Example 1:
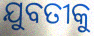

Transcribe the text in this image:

ଯୁବତୀକୁ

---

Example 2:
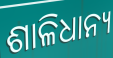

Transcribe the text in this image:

ଶାଳିଧାନ୍ୟ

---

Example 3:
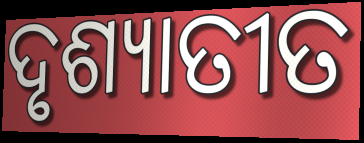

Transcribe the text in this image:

ଦୃଶ୍ୟାତୀତ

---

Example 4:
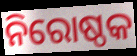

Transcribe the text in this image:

ନିରୋଷ୍ଠକ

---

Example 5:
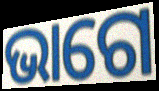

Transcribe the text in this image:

ଭାଗେ